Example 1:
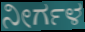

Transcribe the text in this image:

ನೀರ್ಗಳ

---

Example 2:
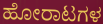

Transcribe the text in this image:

ಹೋರಾಟಗಳ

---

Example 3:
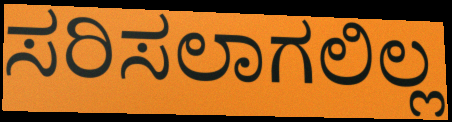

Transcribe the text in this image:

ಸರಿಸಲಾಗಲಿಲ್ಲ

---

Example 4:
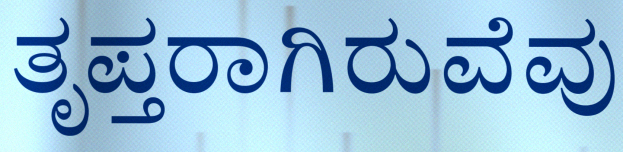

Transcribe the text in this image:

ತೃಪ್ತರಾಗಿರುವೆವು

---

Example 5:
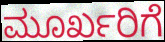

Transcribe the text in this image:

ಮೂರ್ಖರಿಗೆ